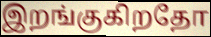
இறங்குகிறதோ